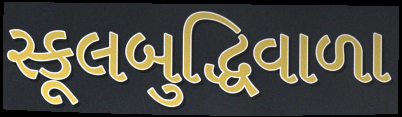
સ્કૂલબુદ્ધિવાળા